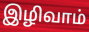
இழிவாம்